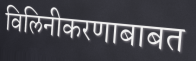
विलिनीकरणाबाबत